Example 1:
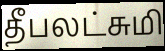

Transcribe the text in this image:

தீபலட்சுமி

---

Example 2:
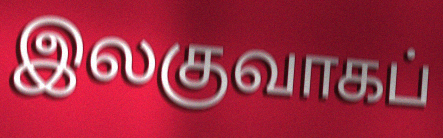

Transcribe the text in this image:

இலகுவாகப்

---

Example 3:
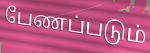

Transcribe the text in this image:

பேணப்படும்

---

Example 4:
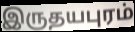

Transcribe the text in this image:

இருதயபுரம்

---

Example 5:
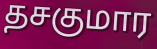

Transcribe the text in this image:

தசகுமார